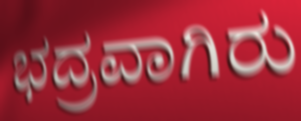
ಭದ್ರವಾಗಿರು